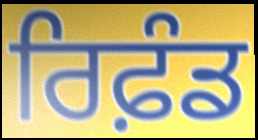
ਰਿਫ਼ੰਡ